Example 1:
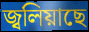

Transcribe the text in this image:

জ্বলিয়াছে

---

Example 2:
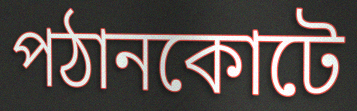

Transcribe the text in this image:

পঠানকোটে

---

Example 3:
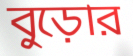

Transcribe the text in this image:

বুড়োর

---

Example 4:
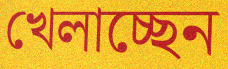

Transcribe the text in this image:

খেলাচ্ছেন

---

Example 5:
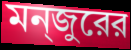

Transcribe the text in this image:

মন্জুরের